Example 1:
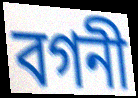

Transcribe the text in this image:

বগনী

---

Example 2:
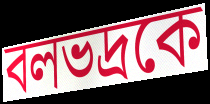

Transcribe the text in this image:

বলভদ্রকে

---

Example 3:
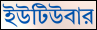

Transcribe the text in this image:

ইউটিউবার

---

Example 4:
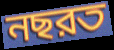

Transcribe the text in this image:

নছরত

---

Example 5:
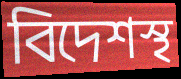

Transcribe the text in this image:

বিদেশস্থ